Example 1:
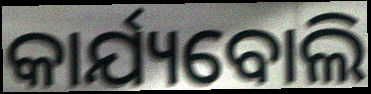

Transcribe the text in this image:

କାର୍ଯ୍ୟବୋଲି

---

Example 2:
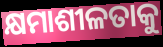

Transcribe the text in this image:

କ୍ଷମାଶୀଳତାକୁ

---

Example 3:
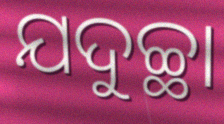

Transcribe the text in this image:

ଯଦୁଚ୍ଛା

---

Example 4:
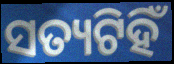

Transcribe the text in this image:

ସତ୍ୟଟିହିଁ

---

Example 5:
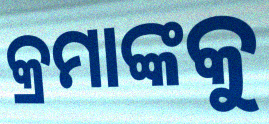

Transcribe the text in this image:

କ୍ରମାଙ୍କକୁ